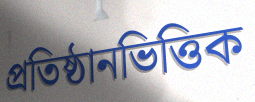
প্রতিষ্ঠানভিত্তিক